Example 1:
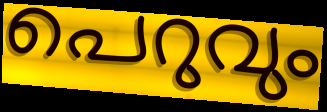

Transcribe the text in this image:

പെറുവും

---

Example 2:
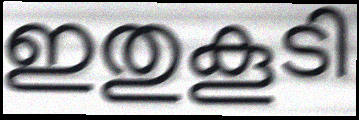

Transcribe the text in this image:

ഇതുകൂടി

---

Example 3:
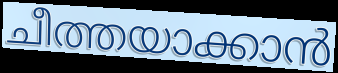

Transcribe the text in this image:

ചീത്തയാക്കാൻ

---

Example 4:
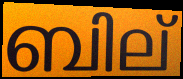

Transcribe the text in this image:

ബില്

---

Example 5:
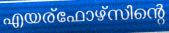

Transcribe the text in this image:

എയര്ഫോഴ്സിന്റെ